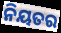
ନିୟତର